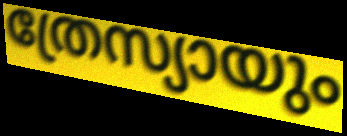
ത്രേസ്യായും